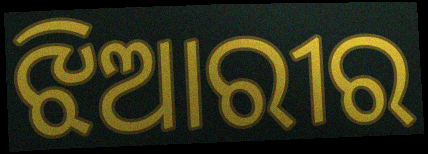
ଝିଆରୀର